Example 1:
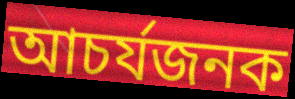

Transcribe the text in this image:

আচৰ্যজনক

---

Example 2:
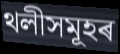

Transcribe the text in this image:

থলীসমূহৰ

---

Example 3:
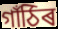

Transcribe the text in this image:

গাঁঠিৰ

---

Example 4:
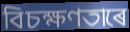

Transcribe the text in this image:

বিচক্ষণতাৰে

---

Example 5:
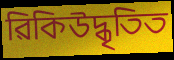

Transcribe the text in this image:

ৱিকিউদ্ধৃতিত